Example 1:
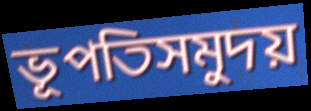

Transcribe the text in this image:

ভূপতিসমুদয়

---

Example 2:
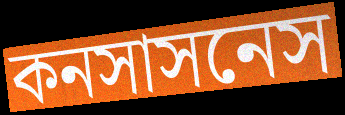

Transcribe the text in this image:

কনসাসনেস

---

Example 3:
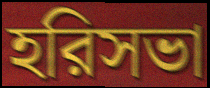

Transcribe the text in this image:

হরিসভা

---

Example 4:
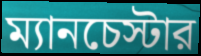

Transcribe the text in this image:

ম্যানচেস্টার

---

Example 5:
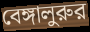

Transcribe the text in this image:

বেঙ্গালুরুর